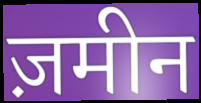
ज़मीन